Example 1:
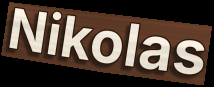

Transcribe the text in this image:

Nikolas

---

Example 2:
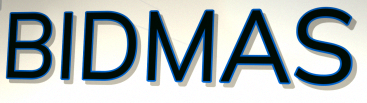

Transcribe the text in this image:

BIDMAS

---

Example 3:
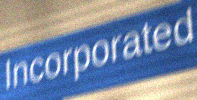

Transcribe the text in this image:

Incorporated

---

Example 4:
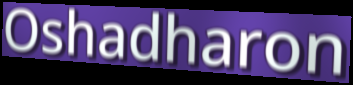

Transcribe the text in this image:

Oshadharon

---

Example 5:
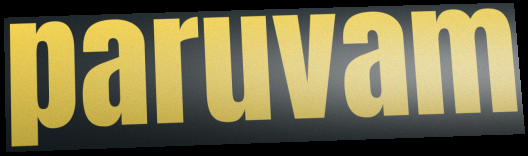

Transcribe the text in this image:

paruvam